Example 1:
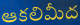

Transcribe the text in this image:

ఆకలిమీద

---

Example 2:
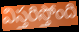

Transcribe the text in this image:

విస్తరిస్తోంది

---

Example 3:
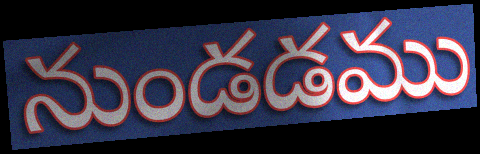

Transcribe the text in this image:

నుండడము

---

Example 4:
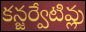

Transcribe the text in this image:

కన్జర్వేటివ్లు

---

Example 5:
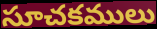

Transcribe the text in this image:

సూచకములు